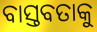
ବାସ୍ତବତାକୁ